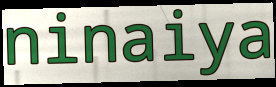
ninaiya